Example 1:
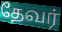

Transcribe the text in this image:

தேவர்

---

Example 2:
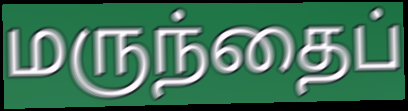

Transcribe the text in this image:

மருந்தைப்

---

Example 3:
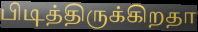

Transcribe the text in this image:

பிடித்திருக்கிறதா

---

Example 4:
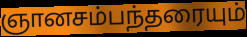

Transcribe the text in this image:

ஞானசம்பந்தரையும்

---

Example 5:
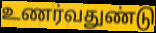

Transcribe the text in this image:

உணர்வதுண்டு